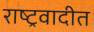
राष्ट्रवादीत